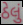
ઠેલું